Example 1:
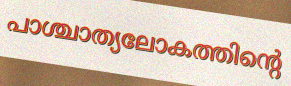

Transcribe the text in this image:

പാശ്ചാത്യലോകത്തിന്റെ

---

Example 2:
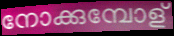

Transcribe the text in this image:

നോക്കുമ്പോള്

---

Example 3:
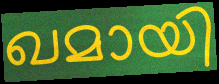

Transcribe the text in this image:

ഖമായി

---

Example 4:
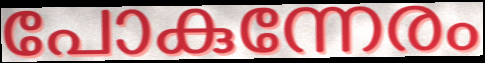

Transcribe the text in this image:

പോകുന്നേരം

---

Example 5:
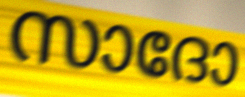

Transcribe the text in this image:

സാദോ